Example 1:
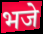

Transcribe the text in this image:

भजे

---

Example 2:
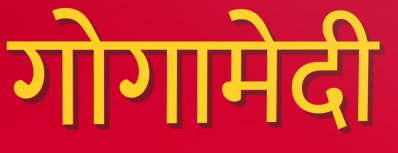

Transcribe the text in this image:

गोगामेदी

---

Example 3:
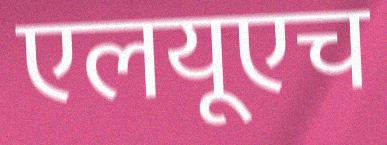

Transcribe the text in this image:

एलयूएच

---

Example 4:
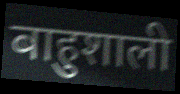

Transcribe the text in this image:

बाहुशाली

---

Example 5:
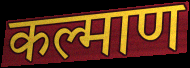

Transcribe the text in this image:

कल्माण